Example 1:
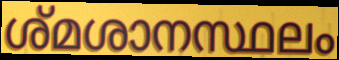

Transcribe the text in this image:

ശ്മശാനസ്ഥലം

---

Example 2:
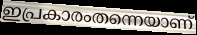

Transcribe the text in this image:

ഇപ്രകാരംതന്നെയാണ്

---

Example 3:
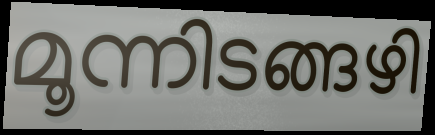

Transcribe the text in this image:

മൂന്നിടങ്ങഴി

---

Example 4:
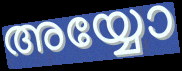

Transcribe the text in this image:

അയ്യോ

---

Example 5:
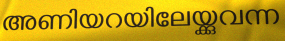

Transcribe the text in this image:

അണിയറയിലേയ്ക്കുവന്ന